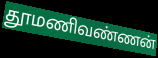
தூமணிவண்ணன்